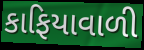
કાફિયાવાળી